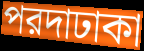
পরদাঢাকা